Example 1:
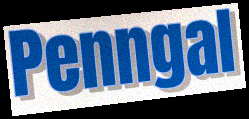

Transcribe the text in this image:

Penngal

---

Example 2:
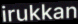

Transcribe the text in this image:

irukkan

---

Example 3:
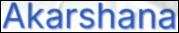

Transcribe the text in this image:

Akarshana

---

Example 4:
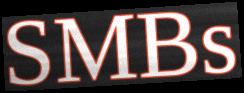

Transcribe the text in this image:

SMBs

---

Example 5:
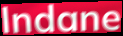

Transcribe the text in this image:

Indane